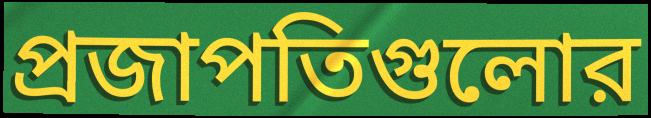
প্রজাপতিগুলোর